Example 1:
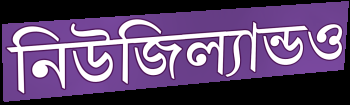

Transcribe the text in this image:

নিউজিল্যান্ডও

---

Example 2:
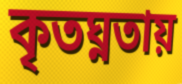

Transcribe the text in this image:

কৃতঘ্নতায়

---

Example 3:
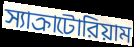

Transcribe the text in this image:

স্যাক্রাটোরিয়াম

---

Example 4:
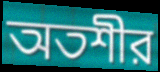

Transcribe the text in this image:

অতশীর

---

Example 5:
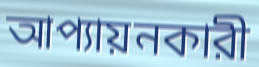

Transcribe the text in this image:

আপ্যায়নকারী